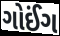
ગોઈંગ